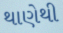
થાણેથી